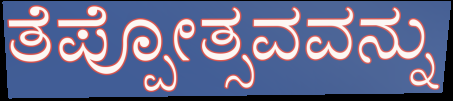
ತೆಪ್ಪೋತ್ಸವವನ್ನು